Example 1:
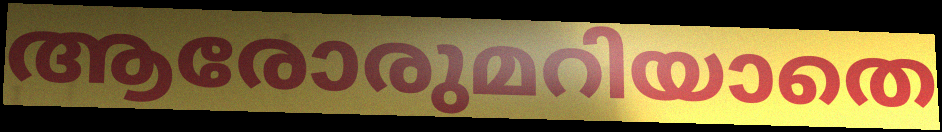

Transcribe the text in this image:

ആരോരുമറിയാതെ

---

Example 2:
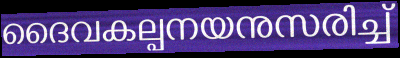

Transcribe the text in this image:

ദൈവകല്പനയനുസരിച്ച്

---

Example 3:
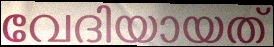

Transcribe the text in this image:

വേദിയായത്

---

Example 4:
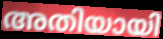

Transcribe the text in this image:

അതിയായി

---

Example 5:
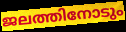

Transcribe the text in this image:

ജലത്തിനോടും